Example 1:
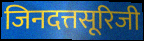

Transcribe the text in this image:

जिनदत्तसूरिजी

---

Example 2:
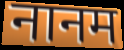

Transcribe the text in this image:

नानम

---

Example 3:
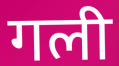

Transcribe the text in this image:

गली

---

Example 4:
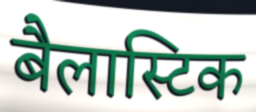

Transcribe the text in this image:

बैलास्टिक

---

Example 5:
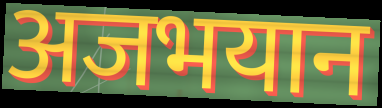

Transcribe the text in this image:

अजभयान